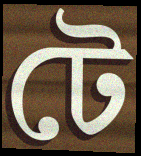
টে